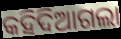
କହିଦିଆଗଲା